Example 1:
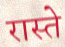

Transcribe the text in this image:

रास्ते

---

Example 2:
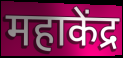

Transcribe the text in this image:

महाकेंद्र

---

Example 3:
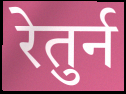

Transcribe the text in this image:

रेतुर्न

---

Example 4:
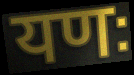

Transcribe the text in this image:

यणः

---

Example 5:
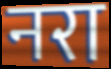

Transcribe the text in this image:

नरा